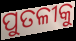
ପୁତଳୀକୁ